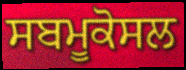
ਸਬਮੂਕੋਸਲ